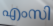
എംസി